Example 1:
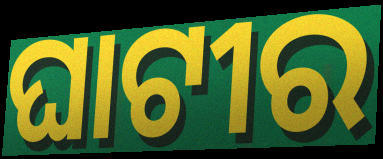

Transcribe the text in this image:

ଘାଟୀର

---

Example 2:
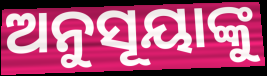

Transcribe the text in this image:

ଅନୁସୂୟାଙ୍କୁ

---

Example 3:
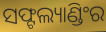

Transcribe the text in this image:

ସଫ୍ଟଲ୍ୟାଣ୍ଡିଂର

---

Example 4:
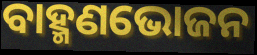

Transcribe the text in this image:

ବାହ୍ମଣଭୋଜନ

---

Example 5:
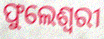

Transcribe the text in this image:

ଫୁଲେଶ୍ବରୀ